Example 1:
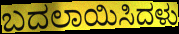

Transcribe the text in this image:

ಬದಲಾಯಿಸಿದಳು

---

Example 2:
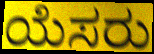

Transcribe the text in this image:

ಯೆಸರು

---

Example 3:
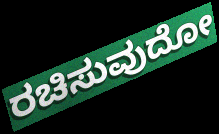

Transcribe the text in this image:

ರಚಿಸುವುದೋ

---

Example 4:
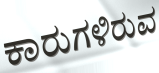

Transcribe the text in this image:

ಕಾರುಗಳಿರುವ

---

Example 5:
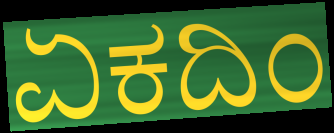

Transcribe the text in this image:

ಏಕದಿಂ